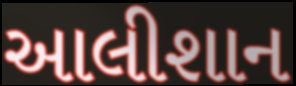
આલીશાન